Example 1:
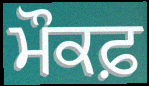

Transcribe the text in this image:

ਮੌਕਫ਼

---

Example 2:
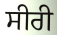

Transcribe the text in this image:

ਸੀਰੀ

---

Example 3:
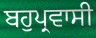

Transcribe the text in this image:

ਬਹੁਪ੍ਰਵਾਸੀ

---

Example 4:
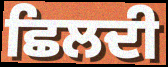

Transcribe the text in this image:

ਛਿਲਦੀ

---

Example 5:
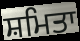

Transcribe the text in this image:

ਸ਼ਮਿਤਾ